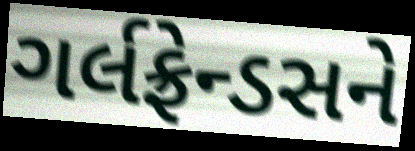
ગર્લફ્રેન્ડસને